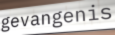
gevangenis